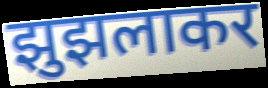
झुझलाकर